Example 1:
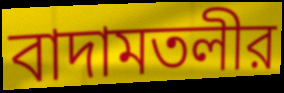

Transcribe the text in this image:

বাদামতলীর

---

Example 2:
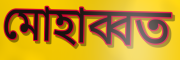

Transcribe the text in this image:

মোহাব্বত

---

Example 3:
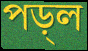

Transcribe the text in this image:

পড়্ল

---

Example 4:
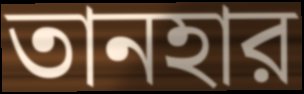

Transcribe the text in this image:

তানহার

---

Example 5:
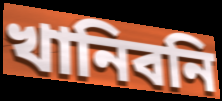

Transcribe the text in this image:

খানিবনি